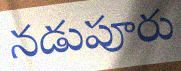
నడుపూరు